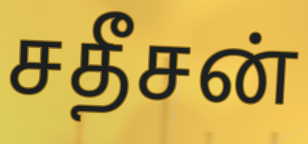
சதீசன்